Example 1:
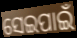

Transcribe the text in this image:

ସେଇପାଇଁ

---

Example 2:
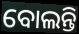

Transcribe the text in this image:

ବୋଲନ୍ତି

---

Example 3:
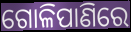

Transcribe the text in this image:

ଗୋଳିପାଣିରେ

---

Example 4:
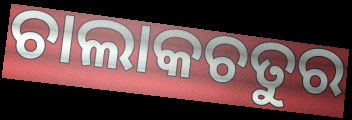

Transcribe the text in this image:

ଚାଲାକଚତୁର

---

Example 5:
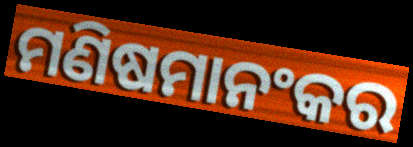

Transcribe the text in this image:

ମଣିଷମାନଂକର